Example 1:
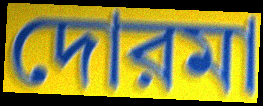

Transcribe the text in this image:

দোরমা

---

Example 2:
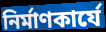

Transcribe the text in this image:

নির্মাণকার্যে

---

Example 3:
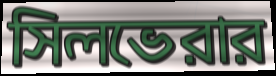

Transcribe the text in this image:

সিলভেরার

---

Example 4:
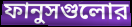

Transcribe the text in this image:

ফানুসগুলোর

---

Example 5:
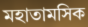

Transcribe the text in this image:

মহাতামসিক